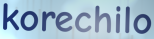
korechilo